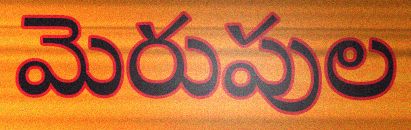
మెరుపుల